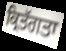
ਕ੍ਰਿਤੱਗਤਾ